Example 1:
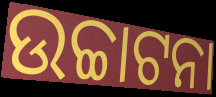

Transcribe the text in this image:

ଉଚ୍ଚାଟନା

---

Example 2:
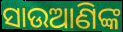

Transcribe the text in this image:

ସାଉଆଣିଙ୍କ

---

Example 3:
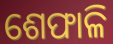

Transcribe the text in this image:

ଶେଫାଳି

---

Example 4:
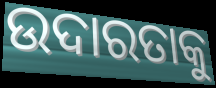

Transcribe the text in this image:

ଉଦାରତାକୁ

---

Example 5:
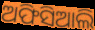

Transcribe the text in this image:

ଅଫିସିଆଲି